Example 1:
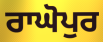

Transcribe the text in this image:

ਰਾਘੋਪੁਰ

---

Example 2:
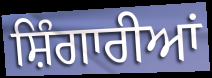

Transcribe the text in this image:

ਸ਼ਿੰਗਾਰੀਆਂ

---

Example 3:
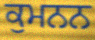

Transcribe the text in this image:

ਕੁਮਨਨ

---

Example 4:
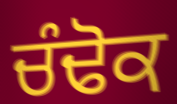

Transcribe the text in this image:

ਚੰਢੋਕ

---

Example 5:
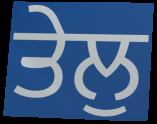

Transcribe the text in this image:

ਤੇਲੁ